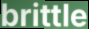
brittle